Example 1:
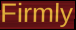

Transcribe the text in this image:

Firmly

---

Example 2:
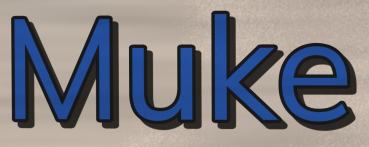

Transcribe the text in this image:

Muke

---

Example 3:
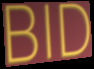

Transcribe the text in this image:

BID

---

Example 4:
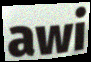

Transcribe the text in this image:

awi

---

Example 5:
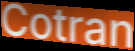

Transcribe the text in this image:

Cotran